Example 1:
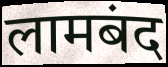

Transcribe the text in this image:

लामबंद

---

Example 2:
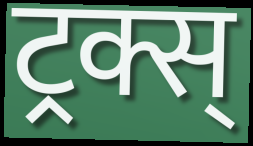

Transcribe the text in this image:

ट्रक्स्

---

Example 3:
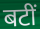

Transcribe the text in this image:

बटीं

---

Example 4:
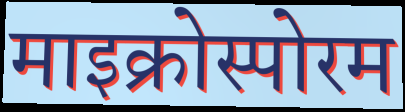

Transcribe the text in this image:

माइक्रोस्पोरम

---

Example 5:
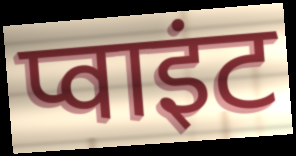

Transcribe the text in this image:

प्वाइंट